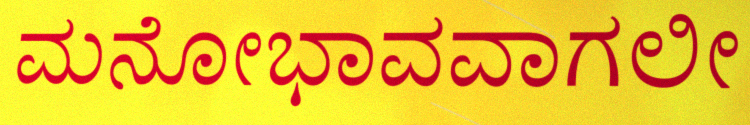
ಮನೋಭಾವವಾಗಲೀ